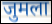
जुमला